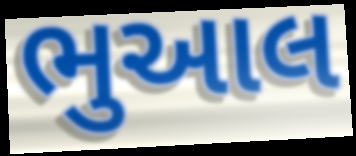
ભુઆલ